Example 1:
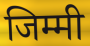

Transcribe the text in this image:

जिम्मी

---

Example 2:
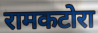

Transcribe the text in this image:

रामकटोरा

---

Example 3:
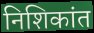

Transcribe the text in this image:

निशिकांत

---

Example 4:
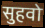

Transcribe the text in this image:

सुहवो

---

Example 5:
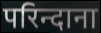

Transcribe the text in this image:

परिन्दाना